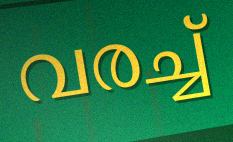
വരച്ച്